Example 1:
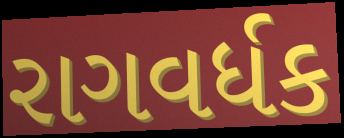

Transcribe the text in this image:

રાગવર્ધક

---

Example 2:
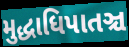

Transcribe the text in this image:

મુદ્ધાધિપાતઞ્ચ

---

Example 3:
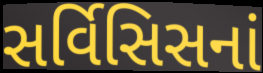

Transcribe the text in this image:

સર્વિસિસનાં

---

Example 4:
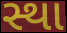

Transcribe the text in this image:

સ્થા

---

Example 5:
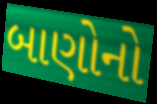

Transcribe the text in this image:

બાણોનો